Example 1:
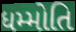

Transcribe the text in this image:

ધમ્મોતિ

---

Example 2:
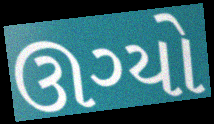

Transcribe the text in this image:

ઊગ્યો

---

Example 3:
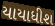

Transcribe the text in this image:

યાયાધીશ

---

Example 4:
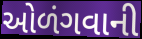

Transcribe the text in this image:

ઓળંગવાની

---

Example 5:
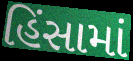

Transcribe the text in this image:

હિંસામાં